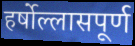
हर्षोल्लासपूर्ण